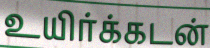
உயிர்க்கடன்